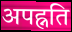
अपह्नति